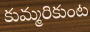
కుమ్మరికుంట